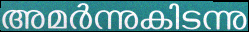
അമർന്നുകിടന്നു